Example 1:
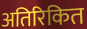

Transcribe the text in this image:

अतिरिकित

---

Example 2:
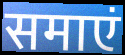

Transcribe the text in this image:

समाएं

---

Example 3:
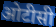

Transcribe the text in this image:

ओटीसी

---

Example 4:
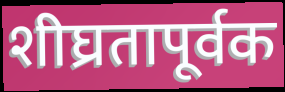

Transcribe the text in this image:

शीघ्रतापूर्वक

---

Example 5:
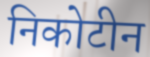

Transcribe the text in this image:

निकोटीन